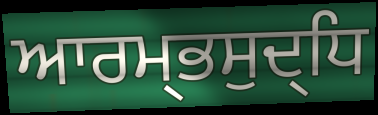
ਆਰਮ੍ਭਸੁਦ੍ਧਿ